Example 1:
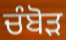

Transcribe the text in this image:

ਚੰਬੋੜ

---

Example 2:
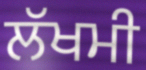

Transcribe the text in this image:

ਲੱਖਮੀ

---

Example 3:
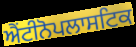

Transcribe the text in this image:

ਐਂਟੀਨੋਪਲਾਸਟਿਕ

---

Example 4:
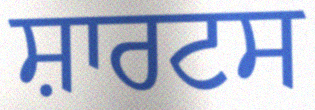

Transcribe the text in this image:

ਸ਼ਾਰਟਸ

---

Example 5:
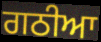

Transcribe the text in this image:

ਗਠੀਆ